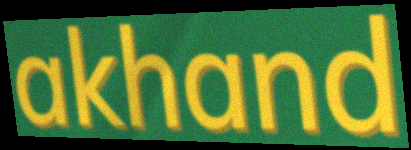
akhand